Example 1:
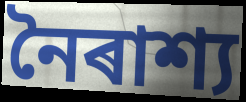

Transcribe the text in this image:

নৈৰাশ্য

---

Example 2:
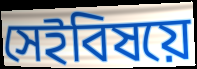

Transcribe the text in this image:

সেইবিষয়ে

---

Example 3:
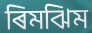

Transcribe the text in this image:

ৰিমঝিম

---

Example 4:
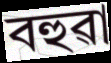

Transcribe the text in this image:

বহুৱা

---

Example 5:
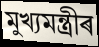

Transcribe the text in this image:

মুখ্যমন্ত্ৰীৰ